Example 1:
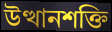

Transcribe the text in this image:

উত্থানশক্তি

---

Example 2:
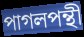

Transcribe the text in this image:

পাগলপন্থী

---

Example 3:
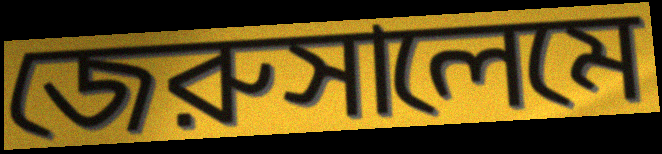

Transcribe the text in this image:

জেরুসালেমে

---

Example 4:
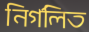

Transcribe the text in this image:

নির্গলিত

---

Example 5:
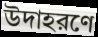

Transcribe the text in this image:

উদাহরণে